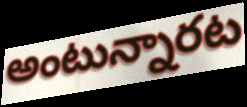
అంటున్నారట